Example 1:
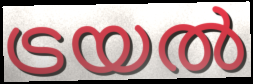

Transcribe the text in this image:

ട്രയൽ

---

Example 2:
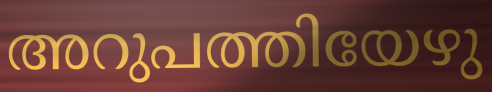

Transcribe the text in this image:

അറുപത്തിയേഴു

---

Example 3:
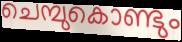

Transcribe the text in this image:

ചെമ്പുകൊണ്ടും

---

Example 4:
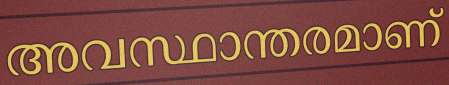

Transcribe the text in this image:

അവസ്ഥാന്തരമാണ്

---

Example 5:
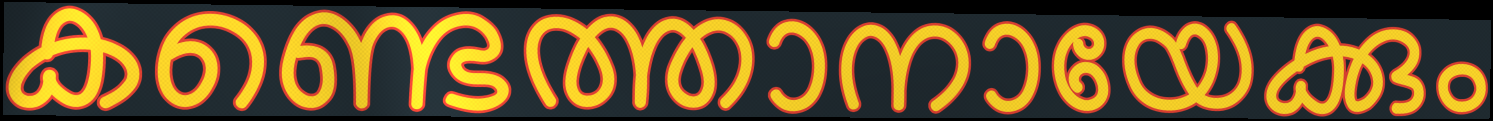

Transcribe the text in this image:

കണ്ടെത്താനായേക്കും